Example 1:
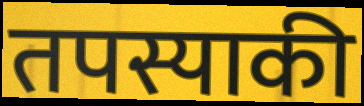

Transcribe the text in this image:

तपस्याकी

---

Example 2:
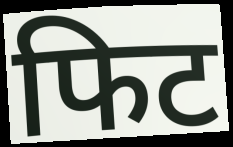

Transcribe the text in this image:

फिट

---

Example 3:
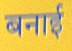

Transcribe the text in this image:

बनाई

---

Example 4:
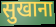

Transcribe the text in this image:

सुखाना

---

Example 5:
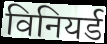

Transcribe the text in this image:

विनियर्ड